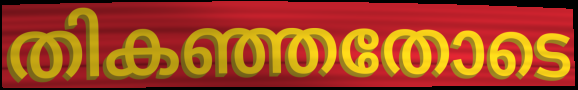
തികഞ്ഞതോടെ